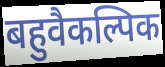
बहुवैकल्पिक